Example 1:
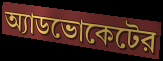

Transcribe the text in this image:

অ্যাডভোকেটের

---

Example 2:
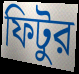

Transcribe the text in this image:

ফিটুর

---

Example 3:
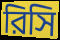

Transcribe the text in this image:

রিসি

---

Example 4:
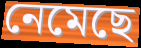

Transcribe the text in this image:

নেমেছে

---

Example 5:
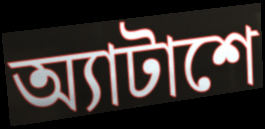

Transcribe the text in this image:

অ্যাটাশে